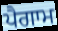
ਪੈਗਾਮ